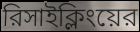
রিসাইক্লিংয়ের